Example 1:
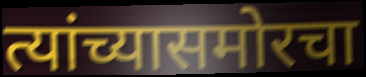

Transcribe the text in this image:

त्यांच्यासमोरचा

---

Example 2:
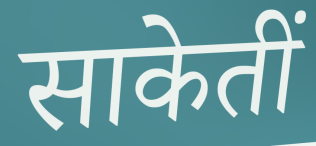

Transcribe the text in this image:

साकेतीं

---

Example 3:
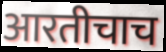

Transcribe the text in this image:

आरतीचाच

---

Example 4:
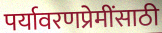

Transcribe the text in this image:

पर्यावरणप्रेमींसाठी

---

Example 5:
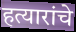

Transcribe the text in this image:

हत्यारांचे